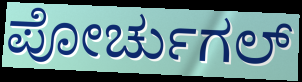
ಪೋರ್ಚುಗಲ್